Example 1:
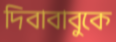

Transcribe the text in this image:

দিবাবাবুকে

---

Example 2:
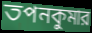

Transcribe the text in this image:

তপনকুমার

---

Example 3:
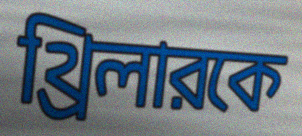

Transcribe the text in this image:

থ্রিলারকে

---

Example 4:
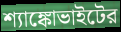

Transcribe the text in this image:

শ্যাঙ্কোভাইটের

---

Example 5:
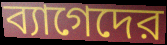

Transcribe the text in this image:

ব্যাগেদের